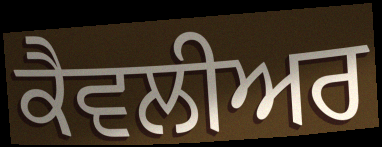
ਕੈਵਲੀਅਰ